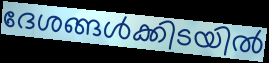
ദേശങ്ങൾക്കിടയിൽ